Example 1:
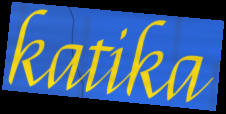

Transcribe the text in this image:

katika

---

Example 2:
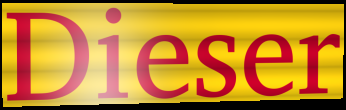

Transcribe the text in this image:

Dieser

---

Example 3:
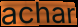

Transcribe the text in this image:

achar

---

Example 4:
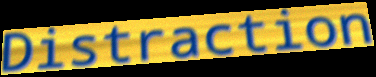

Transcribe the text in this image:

Distraction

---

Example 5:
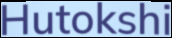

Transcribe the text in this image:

Hutokshi